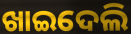
ଖାଇଦେଲି